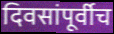
दिवसांपूर्वीच